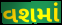
વશમાં